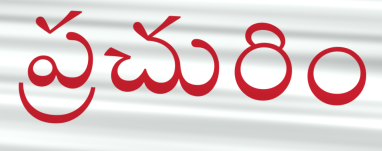
ప్రచురిం